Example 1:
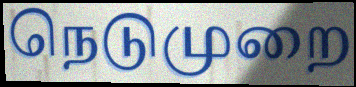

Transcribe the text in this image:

நெடுமுறை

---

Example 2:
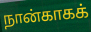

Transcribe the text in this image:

நான்காகக்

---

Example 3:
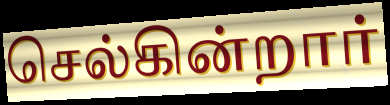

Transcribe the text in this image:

செல்கின்றார்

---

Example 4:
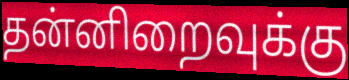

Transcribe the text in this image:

தன்னிறைவுக்கு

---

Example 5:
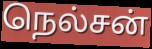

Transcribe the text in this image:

நெல்சன்